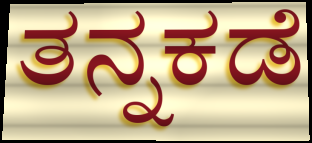
ತನ್ನಕಡೆ